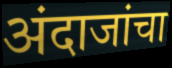
अंदाजांचा